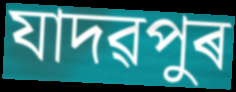
যাদৱপুৰ